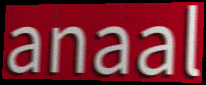
anaal